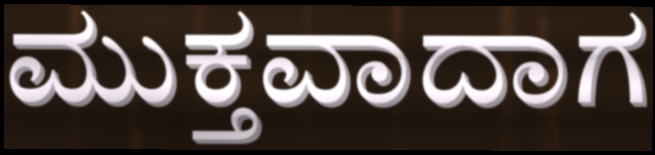
ಮುಕ್ತವಾದಾಗ